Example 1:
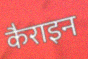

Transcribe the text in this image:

कैराइन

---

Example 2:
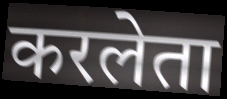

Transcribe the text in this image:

करलेता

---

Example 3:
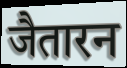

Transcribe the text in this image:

जैतारन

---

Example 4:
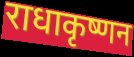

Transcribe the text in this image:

राधाकृष्णन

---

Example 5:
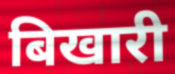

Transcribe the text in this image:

बिखारी